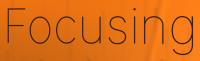
Focusing